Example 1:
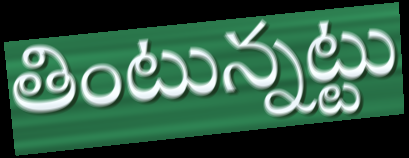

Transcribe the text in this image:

తింటున్నట్టు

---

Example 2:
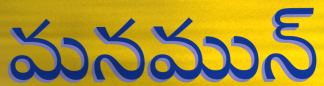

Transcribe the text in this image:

మనమున్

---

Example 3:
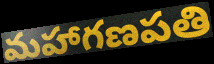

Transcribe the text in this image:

మహాగణపతి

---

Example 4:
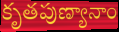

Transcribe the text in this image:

కృతపుణ్యానాం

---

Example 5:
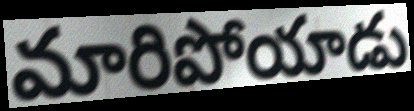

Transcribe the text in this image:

మారిపోయాడు